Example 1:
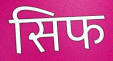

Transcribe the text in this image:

सिफ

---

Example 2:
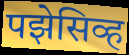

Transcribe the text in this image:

पझेसिव्ह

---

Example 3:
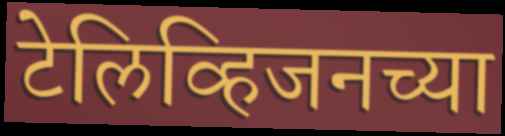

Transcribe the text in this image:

टेलिव्हिजनच्या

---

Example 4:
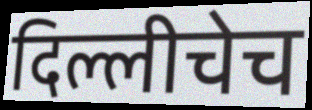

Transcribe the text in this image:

दिल्लीचेच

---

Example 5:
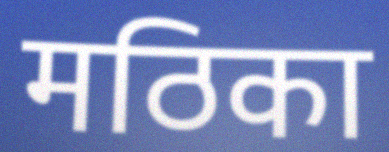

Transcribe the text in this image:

मठिका